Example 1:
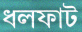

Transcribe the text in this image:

ধলফাট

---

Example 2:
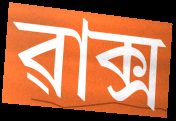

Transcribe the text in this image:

ৱাক্স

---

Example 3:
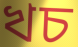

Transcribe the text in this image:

খচ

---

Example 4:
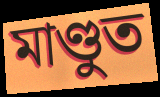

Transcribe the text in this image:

মাণ্ডুত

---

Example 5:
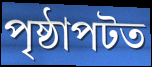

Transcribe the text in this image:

পৃষ্ঠাপটত